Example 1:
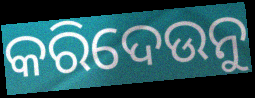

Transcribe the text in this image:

କରିଦେଉନୁ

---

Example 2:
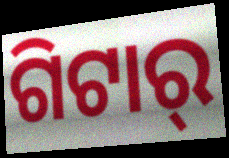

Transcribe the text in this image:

ଗିଟାର୍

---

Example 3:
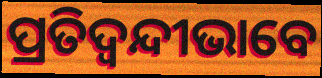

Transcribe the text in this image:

ପ୍ରତିଦ୍ୱନ୍ଦୀଭାବେ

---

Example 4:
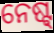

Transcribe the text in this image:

ନେଷ୍ଟ୍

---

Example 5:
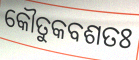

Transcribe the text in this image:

କୌତୁକବଶତଃ